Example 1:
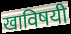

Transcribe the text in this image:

खाविषयी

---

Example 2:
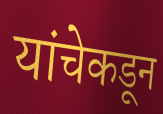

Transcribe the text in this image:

यांचेकडून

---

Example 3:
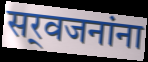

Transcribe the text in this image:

सर्वजनांना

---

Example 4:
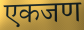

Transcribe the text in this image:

एकजण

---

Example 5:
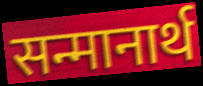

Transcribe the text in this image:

सन्मानार्थ